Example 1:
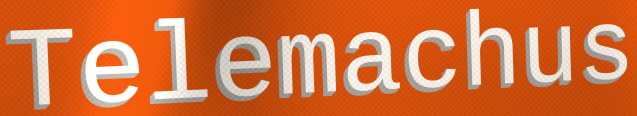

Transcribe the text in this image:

Telemachus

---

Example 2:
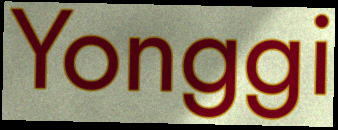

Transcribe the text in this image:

Yonggi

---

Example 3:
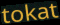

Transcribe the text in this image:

tokat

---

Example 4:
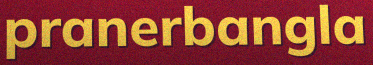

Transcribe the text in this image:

pranerbangla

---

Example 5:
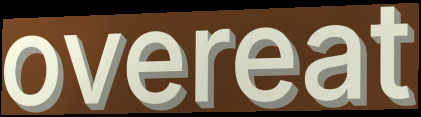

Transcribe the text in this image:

overeat